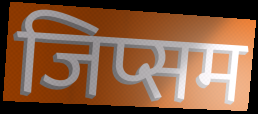
जिप्सम